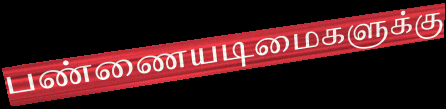
பண்ணையடிமைகளுக்கு